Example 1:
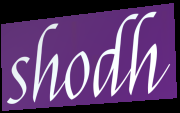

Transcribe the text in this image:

shodh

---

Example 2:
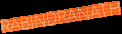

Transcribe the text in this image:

RABINDRANATH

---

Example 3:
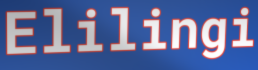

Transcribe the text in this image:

Elilingi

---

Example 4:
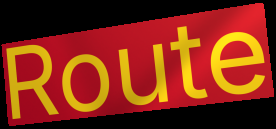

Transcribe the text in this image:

Route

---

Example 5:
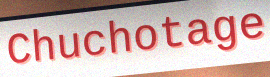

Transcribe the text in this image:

Chuchotage